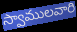
స్వాములవారి